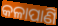
କଳାପାଣି